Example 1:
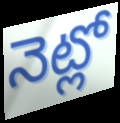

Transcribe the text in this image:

నెట్లో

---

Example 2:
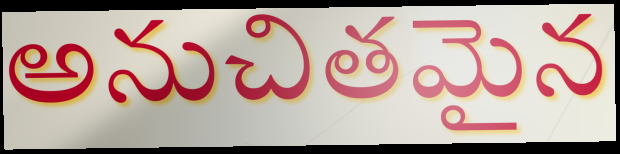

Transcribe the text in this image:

అనుచితమైన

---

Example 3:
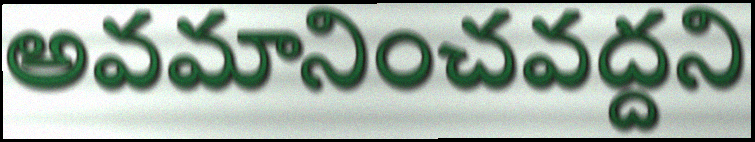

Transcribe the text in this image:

అవమానించవద్దని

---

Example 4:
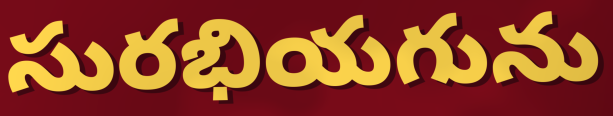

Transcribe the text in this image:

సురభియగును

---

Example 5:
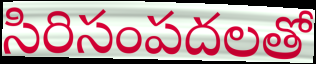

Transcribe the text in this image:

సిరిసంపదలతో